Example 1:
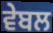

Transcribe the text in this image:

ਵੇਬਲ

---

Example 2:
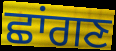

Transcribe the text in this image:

ਛਾਂਗਣ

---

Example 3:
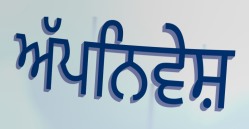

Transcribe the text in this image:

ਅੱਪਨਿਵੇਸ਼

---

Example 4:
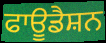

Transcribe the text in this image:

ਫਾਊਡੈਸ਼ਨ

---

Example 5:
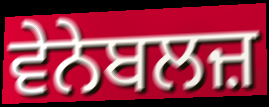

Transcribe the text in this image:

ਵੇਨੇਬਲਜ਼